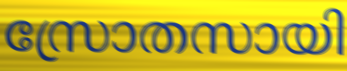
സ്രോതസായി